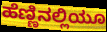
ಹೆಣ್ಣಿನಲ್ಲಿಯೂ